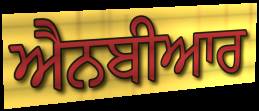
ਐਨਬੀਆਰ